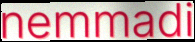
nemmadi